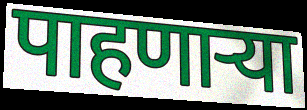
पाहणाऱ्या